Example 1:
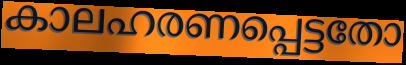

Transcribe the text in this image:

കാലഹരണപ്പെട്ടതോ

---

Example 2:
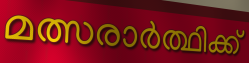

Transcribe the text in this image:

മത്സരാർത്ഥിക്ക്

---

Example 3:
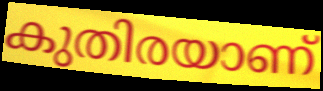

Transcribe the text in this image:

കുതിരയാണ്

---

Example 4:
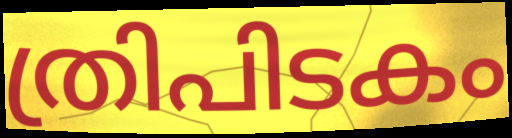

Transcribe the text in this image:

ത്രിപിടകം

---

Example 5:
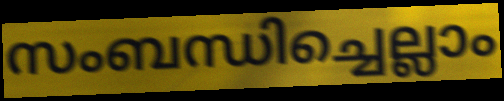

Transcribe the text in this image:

സംബന്ധിച്ചെല്ലാം